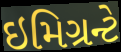
ઇમિગ્રન્ટે